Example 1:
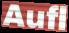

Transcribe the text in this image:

Aufl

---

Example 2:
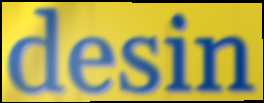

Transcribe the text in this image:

desin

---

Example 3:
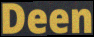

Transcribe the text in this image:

Deen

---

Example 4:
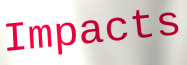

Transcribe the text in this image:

Impacts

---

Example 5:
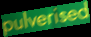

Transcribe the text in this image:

pulverised